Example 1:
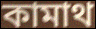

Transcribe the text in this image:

কামাথ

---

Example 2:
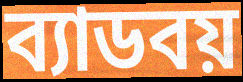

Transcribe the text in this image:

ব্যাডবয়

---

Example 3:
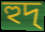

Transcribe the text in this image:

হুদ্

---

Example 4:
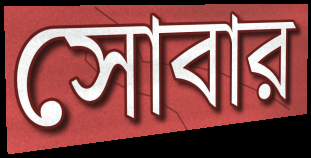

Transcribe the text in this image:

সোবার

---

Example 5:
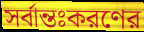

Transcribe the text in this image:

সর্বান্তঃকরণের